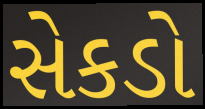
સેકડો